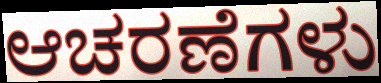
ಆಚರಣೆಗಳು